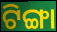
ଟିଙ୍ଗା